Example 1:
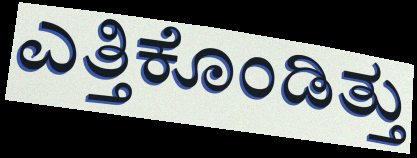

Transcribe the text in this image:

ಎತ್ತಿಕೊಂಡಿತ್ತು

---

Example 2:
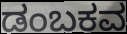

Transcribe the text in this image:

ಡಂಬಕವ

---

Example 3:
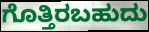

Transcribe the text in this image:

ಗೊತ್ತಿರಬಹುದು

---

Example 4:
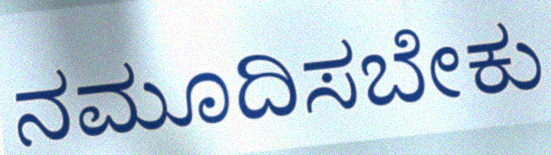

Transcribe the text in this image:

ನಮೂದಿಸಬೇಕು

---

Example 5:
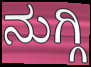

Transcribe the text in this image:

ನುಗ್ಗಿ